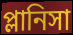
প্লানিসা